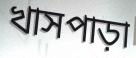
খাসপাড়া